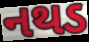
નથડ